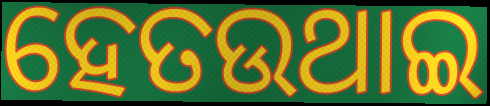
ହେତଉଥାଇ